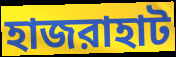
হাজরাহাট